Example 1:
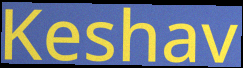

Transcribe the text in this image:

Keshav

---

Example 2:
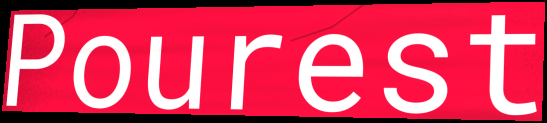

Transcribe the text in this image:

Pourest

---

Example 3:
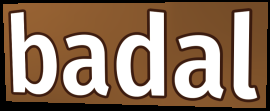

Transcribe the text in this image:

badal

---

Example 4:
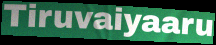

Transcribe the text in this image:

Tiruvaiyaaru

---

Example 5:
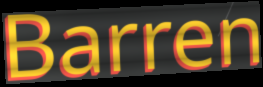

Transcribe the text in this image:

Barren